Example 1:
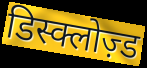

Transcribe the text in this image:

डिस्क्लोज़्ड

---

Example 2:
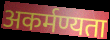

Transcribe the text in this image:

अकर्मण्यता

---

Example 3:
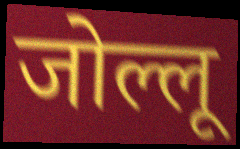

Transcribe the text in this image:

जोल्लू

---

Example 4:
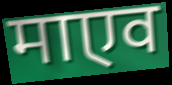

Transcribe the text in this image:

माएव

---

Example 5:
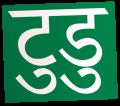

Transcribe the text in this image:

टुडु